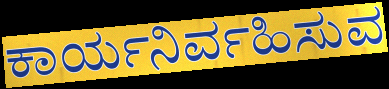
ಕಾರ್ಯನಿರ್ವಹಿಸುವ